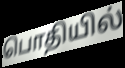
பொதியில்